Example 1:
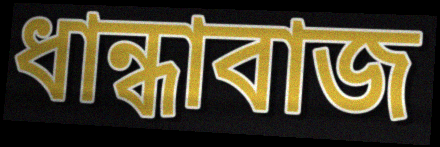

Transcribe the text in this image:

ধান্ধাবাজ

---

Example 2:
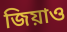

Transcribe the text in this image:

জিয়াও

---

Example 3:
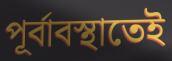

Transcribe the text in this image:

পূর্বাবস্থাতেই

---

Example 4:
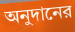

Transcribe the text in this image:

অনুদানের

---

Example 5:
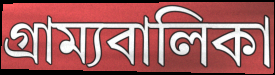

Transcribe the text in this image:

গ্রাম্যবালিকা